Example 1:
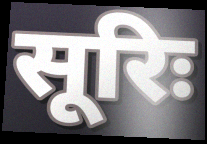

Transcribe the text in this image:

सूरिः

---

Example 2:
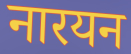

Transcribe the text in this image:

नारयन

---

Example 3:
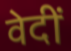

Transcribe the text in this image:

वेदीं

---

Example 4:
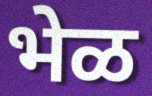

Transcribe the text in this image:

भेळ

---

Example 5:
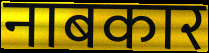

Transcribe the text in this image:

नाबकार